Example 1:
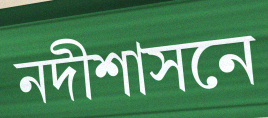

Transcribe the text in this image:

নদীশাসনে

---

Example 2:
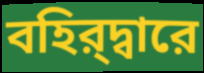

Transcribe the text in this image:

বহির্‌দ্বারে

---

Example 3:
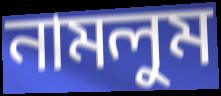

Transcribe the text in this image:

নামলুম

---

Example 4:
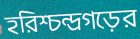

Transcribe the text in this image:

হরিশ্চন্দ্রগড়ের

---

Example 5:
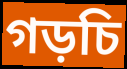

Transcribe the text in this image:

গড়চি